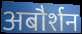
अबौर्शन